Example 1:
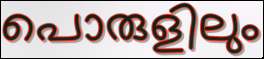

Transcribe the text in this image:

പൊരുളിലും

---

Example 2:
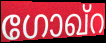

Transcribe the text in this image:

ഗോഖ്റ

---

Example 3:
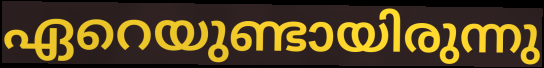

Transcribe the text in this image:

ഏറെയുണ്ടായിരുന്നു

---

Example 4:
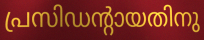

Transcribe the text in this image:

പ്രസിഡന്റായതിനു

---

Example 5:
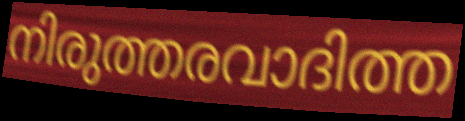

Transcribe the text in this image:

നിരുത്തരവാദിത്ത